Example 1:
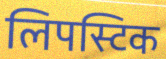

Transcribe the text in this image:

लिपस्टिक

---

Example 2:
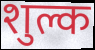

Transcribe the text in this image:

शुल्‍क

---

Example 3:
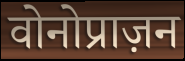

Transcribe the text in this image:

वोनोप्राज़न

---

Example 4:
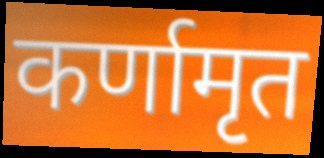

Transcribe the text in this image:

कर्णामृत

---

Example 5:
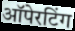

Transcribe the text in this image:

ऑपेरटिंग